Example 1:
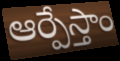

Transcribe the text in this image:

ఆర్పేస్తాం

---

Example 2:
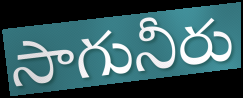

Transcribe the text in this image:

సాగునీరు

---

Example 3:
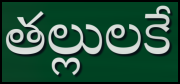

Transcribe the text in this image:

తల్లులకే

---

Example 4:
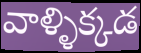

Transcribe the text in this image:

వాళ్ళిక్కడ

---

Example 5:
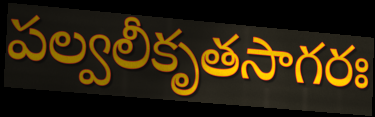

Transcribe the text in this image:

పల్వలీకృతసాగరః